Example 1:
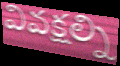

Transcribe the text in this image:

వివక్షల్ని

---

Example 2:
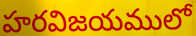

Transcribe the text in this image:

హరవిజయములో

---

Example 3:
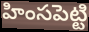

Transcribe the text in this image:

హింసపెట్టి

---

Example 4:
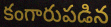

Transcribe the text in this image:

కంగారుపడిన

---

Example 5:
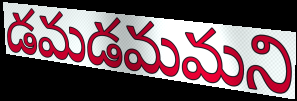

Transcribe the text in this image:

డమడమమని